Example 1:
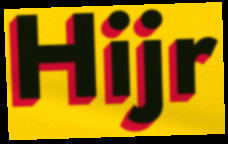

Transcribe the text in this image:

Hijr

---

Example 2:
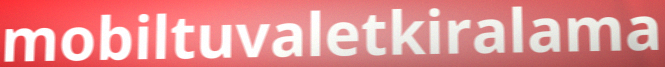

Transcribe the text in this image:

mobiltuvaletkiralama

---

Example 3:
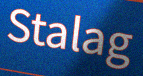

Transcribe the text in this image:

Stalag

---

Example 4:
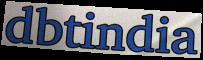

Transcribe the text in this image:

dbtindia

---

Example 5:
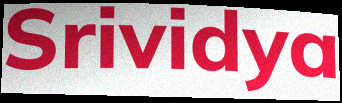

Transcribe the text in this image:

Srividya